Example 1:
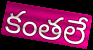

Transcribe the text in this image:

కంతలే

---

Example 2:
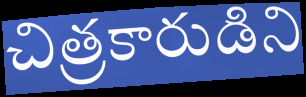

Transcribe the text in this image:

చిత్రకారుడిని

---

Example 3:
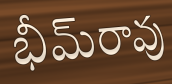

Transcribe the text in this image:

భీమ్‌రావు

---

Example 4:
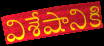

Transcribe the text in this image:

విశేషానికి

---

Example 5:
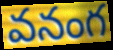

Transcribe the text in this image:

వనంగ